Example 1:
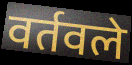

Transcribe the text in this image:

वर्तवले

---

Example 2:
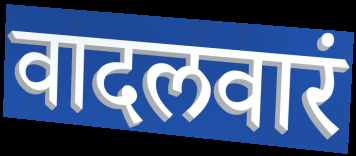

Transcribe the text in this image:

वादलवारं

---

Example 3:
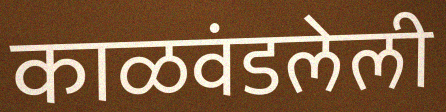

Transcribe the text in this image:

काळवंडलेली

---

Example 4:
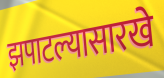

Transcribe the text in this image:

झपाटल्यासारखे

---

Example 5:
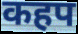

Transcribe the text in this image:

कहप